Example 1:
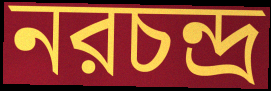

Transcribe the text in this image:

নরচন্দ্র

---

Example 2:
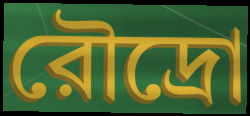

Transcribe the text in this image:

রৌদ্রো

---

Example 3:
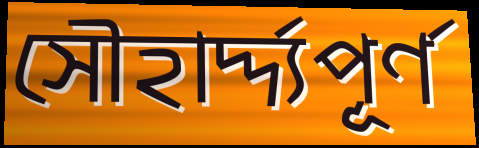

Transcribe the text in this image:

সৌহার্দ্দ্যপূর্ণ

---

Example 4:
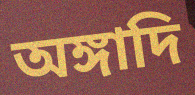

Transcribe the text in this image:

অঙ্গাদি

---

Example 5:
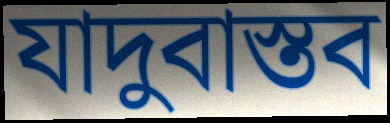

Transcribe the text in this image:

যাদুবাস্তব